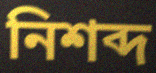
নিশব্দ